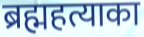
ब्रह्महत्याका